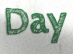
Day